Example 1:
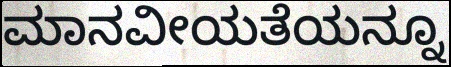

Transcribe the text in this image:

ಮಾನವೀಯತೆಯನ್ನೂ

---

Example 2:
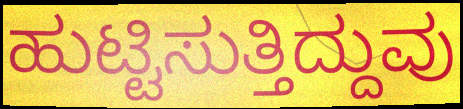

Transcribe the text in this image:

ಹುಟ್ಟಿಸುತ್ತಿದ್ದುವು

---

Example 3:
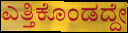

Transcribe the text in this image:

ಎತ್ತಿಕೊಂಡದ್ದೇ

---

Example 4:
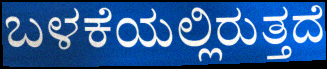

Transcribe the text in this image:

ಬಳಕೆಯಲ್ಲಿರುತ್ತದೆ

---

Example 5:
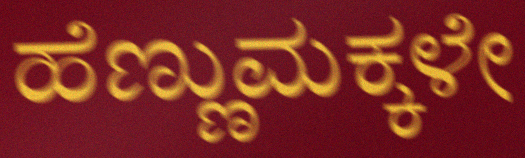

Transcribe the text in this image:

ಹೆಣ್ಣುಮಕ್ಕಳೇ